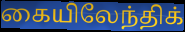
கையிலேந்திக்